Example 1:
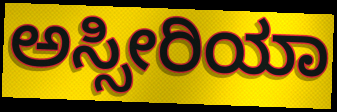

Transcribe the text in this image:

ಅಸ್ಸೀರಿಯಾ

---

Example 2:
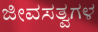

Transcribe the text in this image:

ಜೀವಸತ್ವಗಳ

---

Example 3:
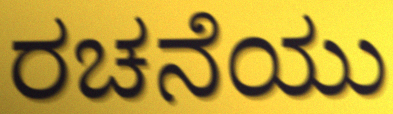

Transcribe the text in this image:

ರಚನೆಯು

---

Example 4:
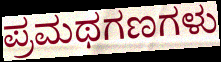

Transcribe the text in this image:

ಪ್ರಮಥಗಣಗಳು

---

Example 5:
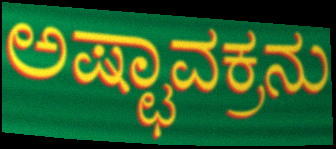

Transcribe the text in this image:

ಅಷ್ಟಾವಕ್ರನು